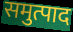
समुत्पाद